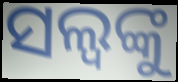
ସଲ୍ୱଙ୍କୁ